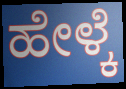
ಹೇಳ್ಕೆ